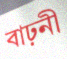
বাঢ়নী